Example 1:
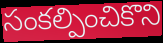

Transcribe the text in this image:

సంకల్పించికొని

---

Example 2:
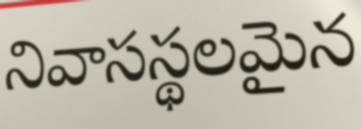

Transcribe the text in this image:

నివాసస్థలమైన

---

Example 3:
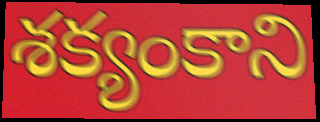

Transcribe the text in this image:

శక్యంకాని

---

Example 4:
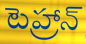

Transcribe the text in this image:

టెహ్రాన్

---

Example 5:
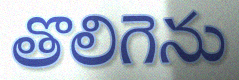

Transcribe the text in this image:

తొలిగెను